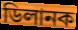
ডিলানক